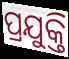
ପ୍ରଯୁକ୍ତି